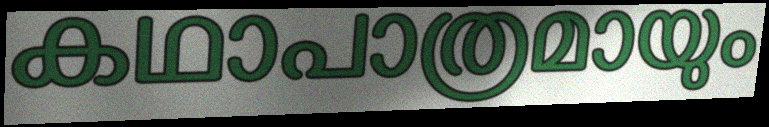
കഥാപാത്രമായും